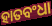
ହାତବଂଧା